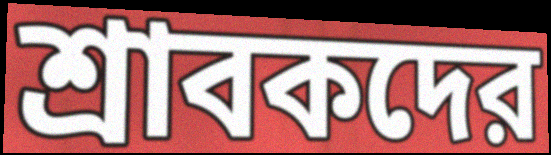
শ্রাবকদের